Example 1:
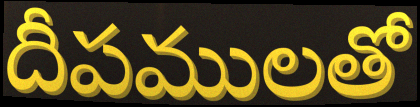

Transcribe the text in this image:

దీపములతో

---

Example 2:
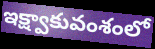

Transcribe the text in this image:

ఇక్ష్వాకువంశంలో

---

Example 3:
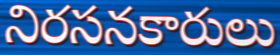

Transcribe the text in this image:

నిరసనకారులు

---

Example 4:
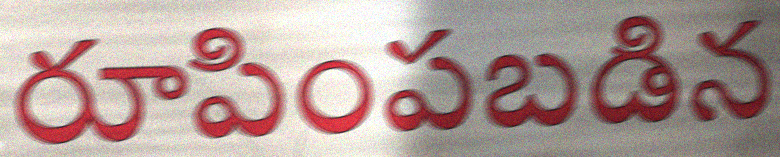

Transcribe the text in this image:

రూపింపబడిన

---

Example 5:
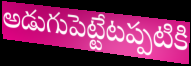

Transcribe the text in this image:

అడుగుపెట్టేటప్పటికి